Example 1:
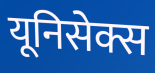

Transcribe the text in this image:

यूनिसेक्स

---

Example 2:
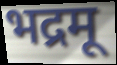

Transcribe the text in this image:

भद्रमू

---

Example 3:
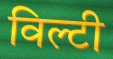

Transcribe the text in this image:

विल्टी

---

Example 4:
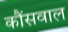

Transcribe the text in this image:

कौंसवाल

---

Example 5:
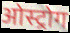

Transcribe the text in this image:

ओस्ट्रोग